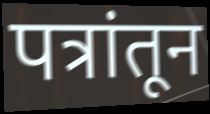
पत्रांतून